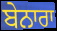
ਬੇਨਾਰਾ